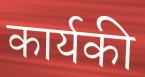
कार्यकी